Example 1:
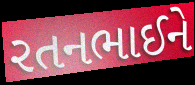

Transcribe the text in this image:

રતનભાઈને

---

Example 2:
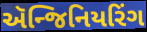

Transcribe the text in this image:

ઍન્જિનિયરિંગ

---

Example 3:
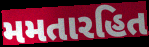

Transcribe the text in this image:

મમતારહિત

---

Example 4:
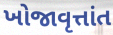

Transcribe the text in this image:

ખોજાવૃત્તાંત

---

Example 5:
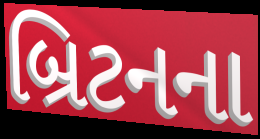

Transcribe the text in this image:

બ્રિટનના